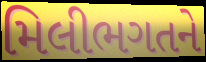
મિલીભગતને